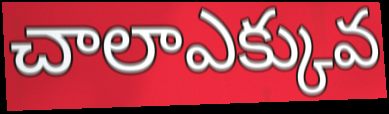
చాలాఎక్కువ